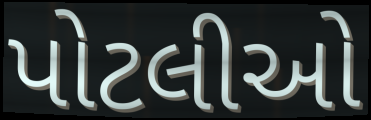
પોટલીઓ